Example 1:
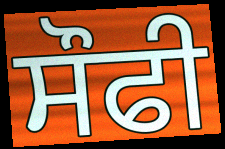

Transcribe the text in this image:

ਸੌਫੀ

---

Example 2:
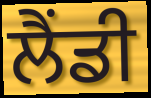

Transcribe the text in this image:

ਲੈਂਡੀ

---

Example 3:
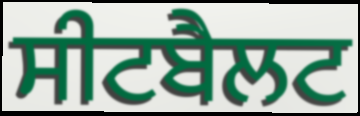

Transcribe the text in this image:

ਸੀਟਬੈਲਟ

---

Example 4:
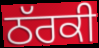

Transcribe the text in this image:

ਠੱਰਕੀ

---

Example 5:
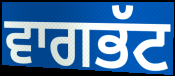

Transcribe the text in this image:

ਵਾਗਭੱਟ